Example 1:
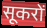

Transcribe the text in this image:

सूकरों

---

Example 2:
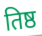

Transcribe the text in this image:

तिष्ठ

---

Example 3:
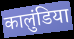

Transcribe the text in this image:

कालुंडिया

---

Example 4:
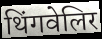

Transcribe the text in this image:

थिंगवेलिर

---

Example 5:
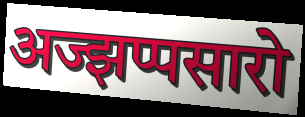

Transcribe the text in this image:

अज्झप्पसारो